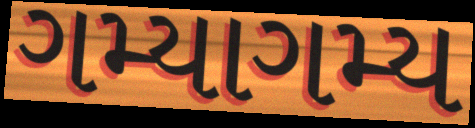
ગમ્યાગમ્ય